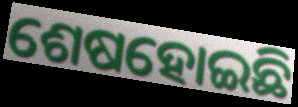
ଶେଷହୋଇଛି